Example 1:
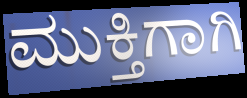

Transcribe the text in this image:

ಮುಕ್ತಿಗಾಗಿ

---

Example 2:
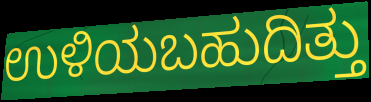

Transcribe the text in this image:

ಉಳಿಯಬಹುದಿತ್ತು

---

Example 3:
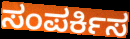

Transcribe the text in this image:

ಸಂಪರ್ಕಿಸ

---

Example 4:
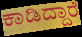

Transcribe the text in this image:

ಕಾಡಿದ್ದಾರೆ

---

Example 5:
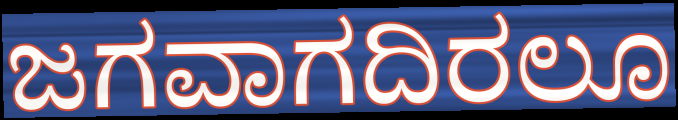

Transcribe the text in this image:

ಜಗವಾಗದಿರಲೂ